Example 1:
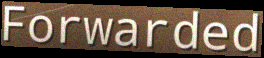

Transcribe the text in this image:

Forwarded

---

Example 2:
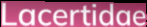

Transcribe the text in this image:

Lacertidae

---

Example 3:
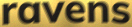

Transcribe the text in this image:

ravens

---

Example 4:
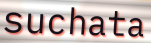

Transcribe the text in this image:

suchata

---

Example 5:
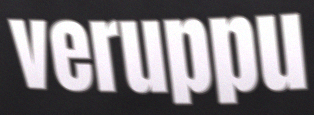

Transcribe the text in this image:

veruppu